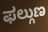
ಫಲ್ಗುಣ